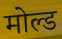
मोल्ड